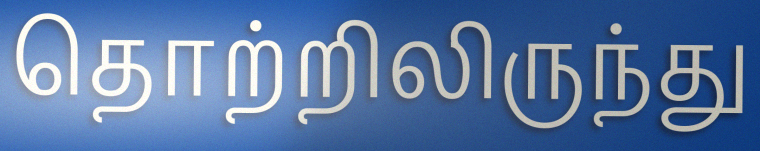
தொற்றிலிருந்து